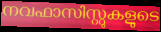
നവഫാസിസ്റ്റുകളുടെ